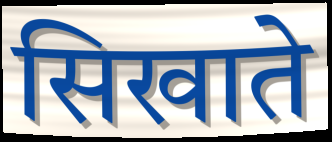
सिखाते